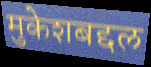
मुकेशबद्दल